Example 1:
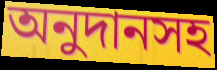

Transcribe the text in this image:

অনুদানসহ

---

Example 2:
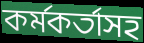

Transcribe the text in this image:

কর্মকর্তাসহ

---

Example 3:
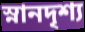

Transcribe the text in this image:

স্নানদৃশ্য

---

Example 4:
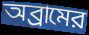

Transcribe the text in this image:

অব্রামের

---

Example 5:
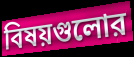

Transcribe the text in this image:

বিষয়গুলোর